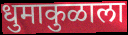
धुमाकुळाला